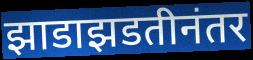
झाडाझडतीनंतर